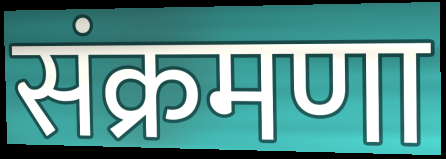
संक्रमणा